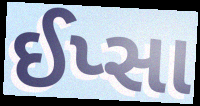
ઈપ્સા